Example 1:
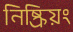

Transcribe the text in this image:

নিষ্ক্রিয়ং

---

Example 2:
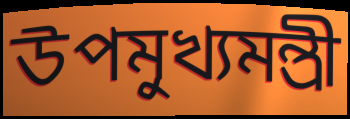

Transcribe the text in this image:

উপমুখ্যমন্ত্রী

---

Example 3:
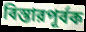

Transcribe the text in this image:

বিস্তারপূর্বক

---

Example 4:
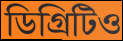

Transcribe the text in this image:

ডিগ্রিটিও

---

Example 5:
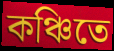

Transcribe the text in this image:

কঞ্চিতে